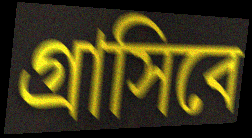
গ্রাসিবে